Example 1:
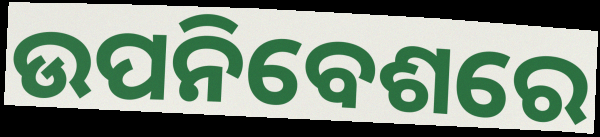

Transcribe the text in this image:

ଉପନିବେଶରେ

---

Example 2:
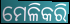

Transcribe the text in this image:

ମେଳିକରି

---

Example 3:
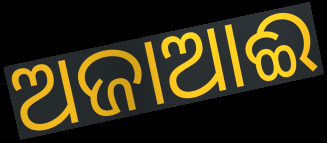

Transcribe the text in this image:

ଅଜାଆଈ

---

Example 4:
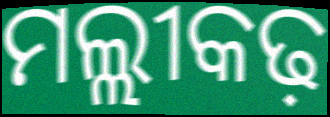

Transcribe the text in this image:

ମଲ୍ଲୀକଢ଼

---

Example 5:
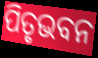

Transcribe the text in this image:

ପିତୃଭବନ